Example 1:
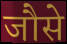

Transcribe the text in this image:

जौसे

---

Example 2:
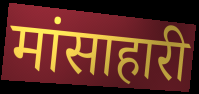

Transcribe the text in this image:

मांसाहारी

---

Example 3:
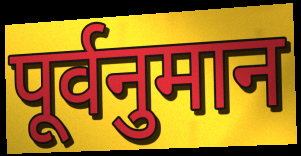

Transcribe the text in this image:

पूर्वनुमान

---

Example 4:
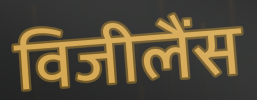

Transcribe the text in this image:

विजीलैंस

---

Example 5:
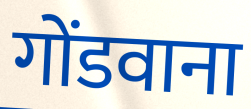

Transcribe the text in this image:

गोंडवाना